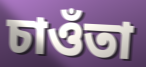
চাওঁতা